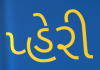
પ્હેરી